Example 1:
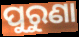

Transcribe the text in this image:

ପୁରୁଣା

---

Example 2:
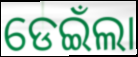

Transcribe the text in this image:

ଡେଇଁଲା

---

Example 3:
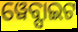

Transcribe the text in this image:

ୱେବ୍ସାଇଟ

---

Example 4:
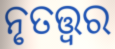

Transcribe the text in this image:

ନୃତତ୍ତ୍ଵର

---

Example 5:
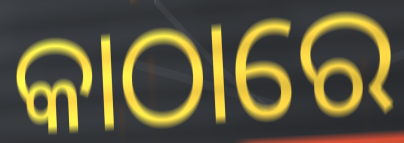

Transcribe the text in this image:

କାଠାରେ